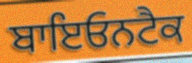
ਬਾਇਓਨਟੈਕ